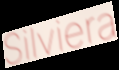
Silviera